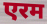
एरम